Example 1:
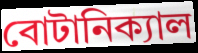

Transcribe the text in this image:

বোটানিক্যাল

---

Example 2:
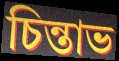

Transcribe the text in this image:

চিন্তাভ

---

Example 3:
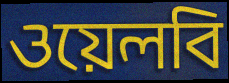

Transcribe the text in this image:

ওয়েলবি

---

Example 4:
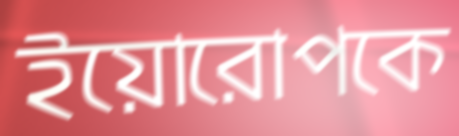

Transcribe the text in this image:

ইয়োরোপকে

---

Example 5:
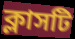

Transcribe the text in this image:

ক্লাসটি